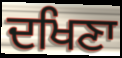
ਦਖਿਣਾ